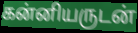
கன்னியருடன்